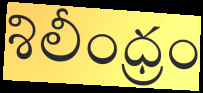
శిలీంధ్రం